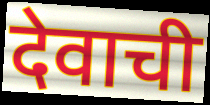
देवाची